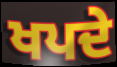
ਖਪਦੇ